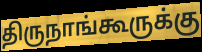
திருநாங்கூருக்கு